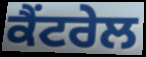
ਕੈਂਟਰੇਲ